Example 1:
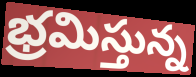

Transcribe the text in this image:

భ్రమిస్తున్న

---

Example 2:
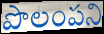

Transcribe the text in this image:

పొలంపని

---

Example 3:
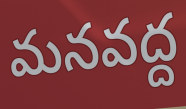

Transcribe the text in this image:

మనవద్ద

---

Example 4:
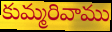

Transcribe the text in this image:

కుమ్మరివాము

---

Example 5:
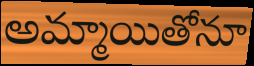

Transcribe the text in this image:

అమ్మాయితోనూ